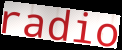
radio